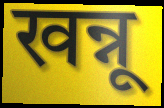
खन्नू